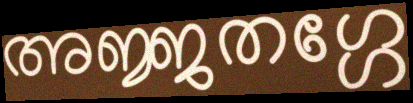
അജ്ജതഗ്ഗേ